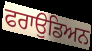
ਫਰਾਉਡਿਅਨ